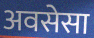
अवसेसा